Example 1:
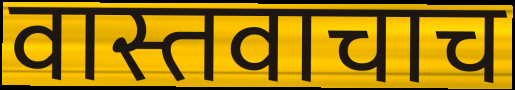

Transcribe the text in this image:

वास्तवाचाच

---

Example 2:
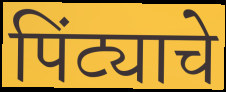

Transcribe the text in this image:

पिंट्याचे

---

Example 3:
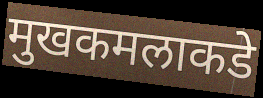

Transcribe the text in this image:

मुखकमलाकडे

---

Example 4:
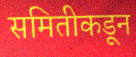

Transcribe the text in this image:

समितीकडून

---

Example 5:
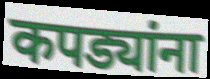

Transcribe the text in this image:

कपड्यांना